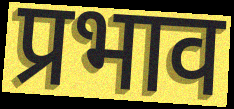
प्रभाव